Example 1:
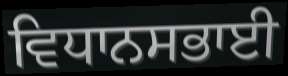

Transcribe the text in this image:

ਵਿਧਾਨਸਭਾਈ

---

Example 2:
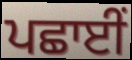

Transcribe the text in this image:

ਪਛਾਈਂ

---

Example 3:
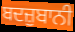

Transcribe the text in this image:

ਬਦਜ਼ੁਬਾਨੀ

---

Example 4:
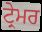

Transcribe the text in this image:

ਟ੍ਰੇਮਰ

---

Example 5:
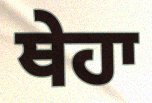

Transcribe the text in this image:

ਥੇਹਾ